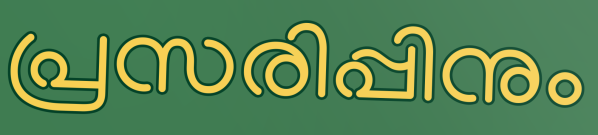
പ്രസരിപ്പിനും